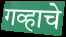
गव्हाचे